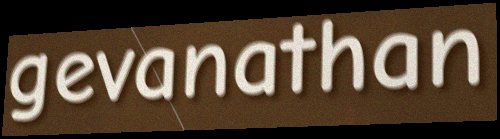
gevanathan